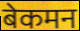
बेकमन